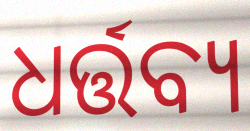
ଧର୍ତ୍ତବ୍ୟ